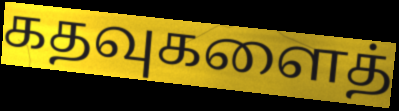
கதவுகளைத்